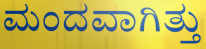
ಮಂದವಾಗಿತ್ತು